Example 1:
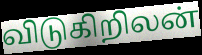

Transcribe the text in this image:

விடுகிறிலன்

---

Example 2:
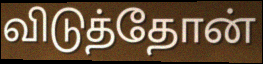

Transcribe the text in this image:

விடுத்தோன்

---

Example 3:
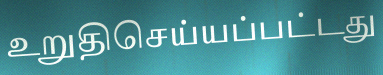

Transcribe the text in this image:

உறுதிசெய்யப்பட்டது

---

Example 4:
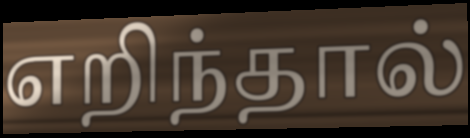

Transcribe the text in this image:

எறிந்தால்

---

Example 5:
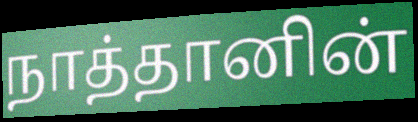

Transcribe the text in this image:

நாத்தானின்